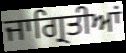
ਜਾਗ੍ਰਿਤੀਆਂ